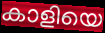
കാളിയെ